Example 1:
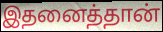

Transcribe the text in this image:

இதனைத்தான்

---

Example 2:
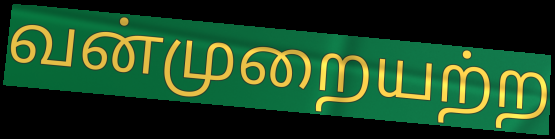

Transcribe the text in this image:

வன்முறையற்ற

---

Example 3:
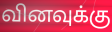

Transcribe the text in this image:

வினவுக்கு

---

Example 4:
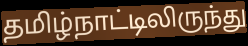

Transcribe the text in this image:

தமிழ்நாட்டிலிருந்து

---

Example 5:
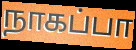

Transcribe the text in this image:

நாகப்பா